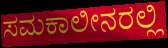
ಸಮಕಾಲೀನರಲ್ಲಿ